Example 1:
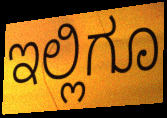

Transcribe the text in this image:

ಇಲ್ಲಿಗೂ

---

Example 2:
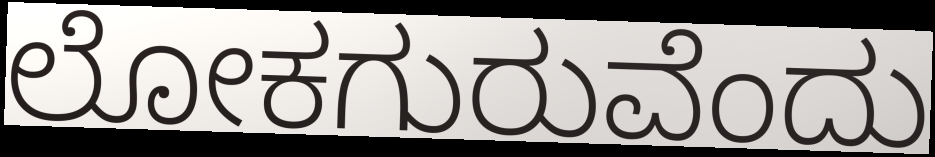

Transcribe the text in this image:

ಲೋಕಗುರುವೆಂದು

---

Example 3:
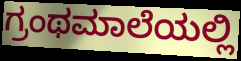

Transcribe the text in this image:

ಗ್ರಂಥಮಾಲೆಯಲ್ಲಿ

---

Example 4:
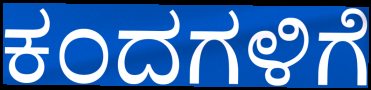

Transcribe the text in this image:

ಕಂದಗಳಿಗೆ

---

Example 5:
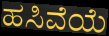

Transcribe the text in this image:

ಹಸಿವೆಯೆ